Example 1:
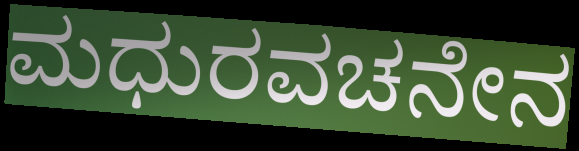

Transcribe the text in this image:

ಮಧುರವಚನೇನ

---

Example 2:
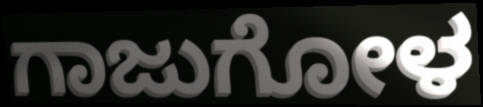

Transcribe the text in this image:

ಗಾಜುಗೋಳ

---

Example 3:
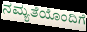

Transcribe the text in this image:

ನಮ್ಯತೆಯೊಂದಿಗೆ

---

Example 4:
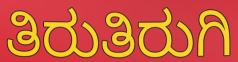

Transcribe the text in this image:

ತಿರುತಿರುಗಿ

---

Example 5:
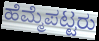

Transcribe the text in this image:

ಹೆಮ್ಮೆಪಟ್ಟರು